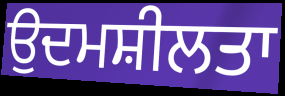
ਉਦਮਸ਼ੀਲਤਾ